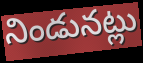
నిండునట్లు